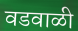
वडवाळी